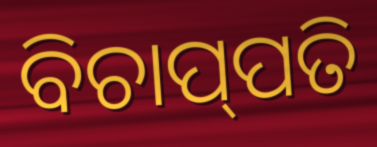
ବିଚାପ୍‌ପତି